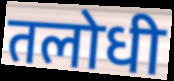
तलोधी